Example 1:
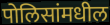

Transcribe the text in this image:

पोलिसांमधील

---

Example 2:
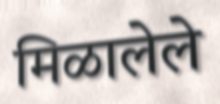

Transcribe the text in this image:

मिळालेले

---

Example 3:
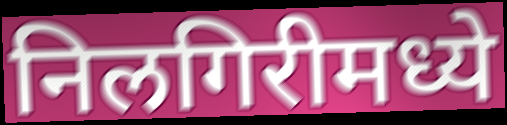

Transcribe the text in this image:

निलगिरीमध्ये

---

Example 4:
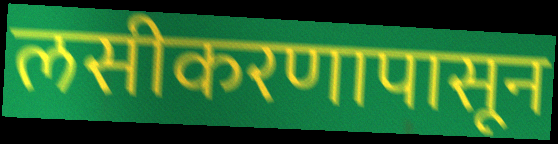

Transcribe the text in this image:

लसीकरणापासून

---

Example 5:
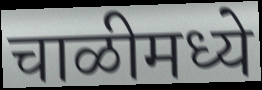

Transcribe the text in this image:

चाळीमध्ये